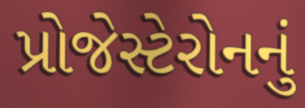
પ્રોજેસ્ટેરોનનું